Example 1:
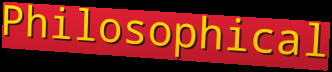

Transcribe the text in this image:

Philosophical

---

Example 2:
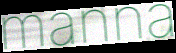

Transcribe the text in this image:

manna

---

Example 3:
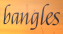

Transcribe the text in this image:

bangles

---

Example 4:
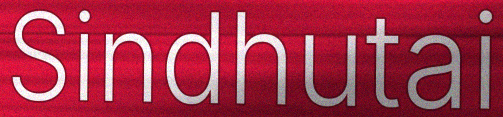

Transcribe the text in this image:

Sindhutai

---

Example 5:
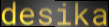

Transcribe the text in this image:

desika